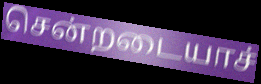
சென்றடையாச்